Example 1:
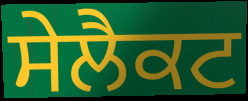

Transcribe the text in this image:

ਸੇਲੈਕਟ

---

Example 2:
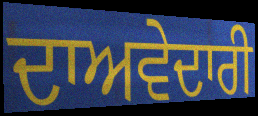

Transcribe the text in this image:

ਦਾਅਵੇਦਾਰੀ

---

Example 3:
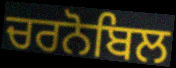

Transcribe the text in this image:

ਚਰਨੋਬਿਲ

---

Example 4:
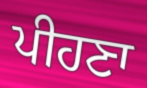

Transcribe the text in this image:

ਪੀਹਣਾ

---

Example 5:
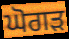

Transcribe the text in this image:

ਘੋਗੜ